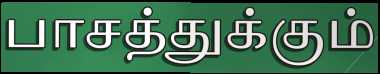
பாசத்துக்கும்